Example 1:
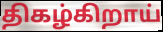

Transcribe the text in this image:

திகழ்கிறாய்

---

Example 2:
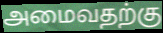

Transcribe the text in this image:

அமைவதற்கு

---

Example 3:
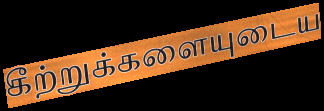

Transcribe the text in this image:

கீற்றுக்களையுடைய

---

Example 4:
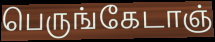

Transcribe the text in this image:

பெருங்கேடாஞ்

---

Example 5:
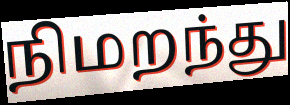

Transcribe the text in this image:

நிமறந்து